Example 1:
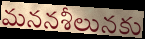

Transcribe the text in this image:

మననశీలునకు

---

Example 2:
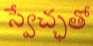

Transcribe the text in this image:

స్వేచ్ఛతో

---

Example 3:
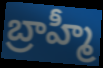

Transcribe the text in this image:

బ్రాహ్మీ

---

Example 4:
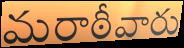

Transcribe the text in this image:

మరాఠీవారు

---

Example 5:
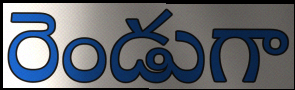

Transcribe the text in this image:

రెండుగా